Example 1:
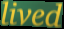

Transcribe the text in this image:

lived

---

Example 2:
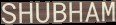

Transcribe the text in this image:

SHUBHAM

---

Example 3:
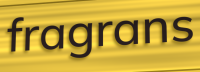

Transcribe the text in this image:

fragrans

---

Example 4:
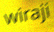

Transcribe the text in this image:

wiraji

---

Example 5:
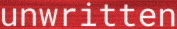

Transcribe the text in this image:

unwritten